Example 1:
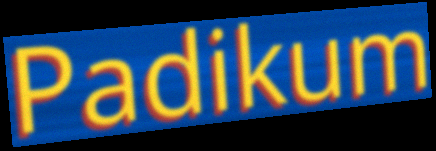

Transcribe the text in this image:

Padikum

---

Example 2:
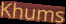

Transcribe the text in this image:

Khums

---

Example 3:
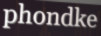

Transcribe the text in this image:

phondke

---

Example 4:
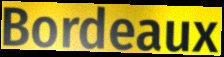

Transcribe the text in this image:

Bordeaux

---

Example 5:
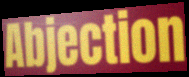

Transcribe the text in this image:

Abjection